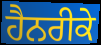
ਹੈਨਰੀਕੇ